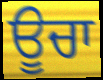
ਊਚਾ